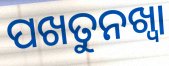
ପଖତୁନଖ୍ୱା